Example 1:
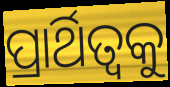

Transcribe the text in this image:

ପ୍ରାର୍ଥିତ୍ୱକୁ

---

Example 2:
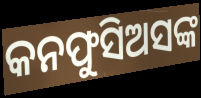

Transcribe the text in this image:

କନଫୁସିଅସଙ୍କ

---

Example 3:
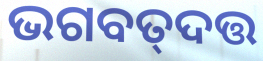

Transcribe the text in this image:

ଭଗବତ୍‌ଦତ୍ତ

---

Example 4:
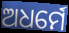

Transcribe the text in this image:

ଅଧର୍ମେ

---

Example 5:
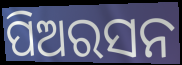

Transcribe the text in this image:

ପିଅରସନ